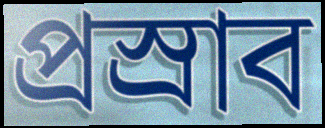
প্রস্রাব